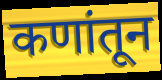
कणांतून